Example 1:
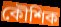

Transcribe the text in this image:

কৌশিক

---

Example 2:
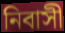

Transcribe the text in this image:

নিবাসী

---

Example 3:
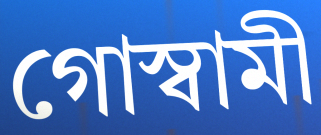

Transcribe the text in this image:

গোস্বামী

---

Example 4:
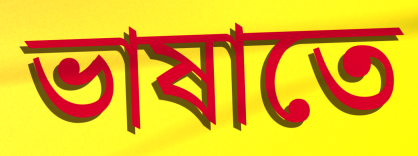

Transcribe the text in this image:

ভাষাতে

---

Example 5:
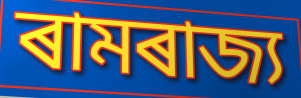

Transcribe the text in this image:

ৰামৰাজ্য